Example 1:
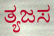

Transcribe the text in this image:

ತ್ಯಜಸ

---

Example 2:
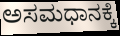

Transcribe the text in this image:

ಅಸಮಧಾನಕ್ಕೆ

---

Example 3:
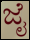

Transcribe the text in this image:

ಜೈ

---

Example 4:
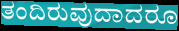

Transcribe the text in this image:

ತಂದಿರುವುದಾದರೂ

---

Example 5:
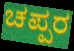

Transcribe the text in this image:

ಚಪ್ಪರ